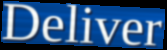
Deliver